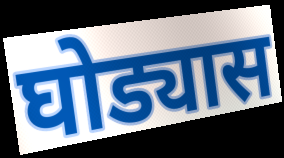
घोड्यास